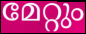
മേറ്റും